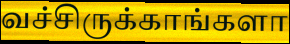
வச்சிருக்காங்களா